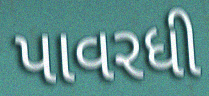
પાવરધી